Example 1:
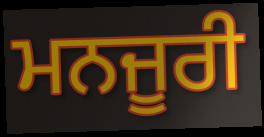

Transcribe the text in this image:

ਮਨਜੂਰੀ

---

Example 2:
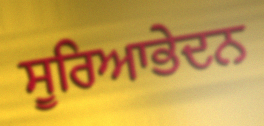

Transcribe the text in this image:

ਸੂਰਿਆਭੇਦਨ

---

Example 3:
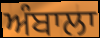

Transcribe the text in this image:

ਅੰਬਾਲਾ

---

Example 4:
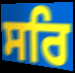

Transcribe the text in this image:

ਸਰਿ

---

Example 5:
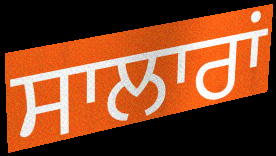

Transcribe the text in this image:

ਸਾਲਾਰਾਂ